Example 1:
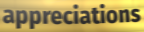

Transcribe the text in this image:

appreciations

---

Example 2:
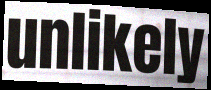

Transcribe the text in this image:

unlikely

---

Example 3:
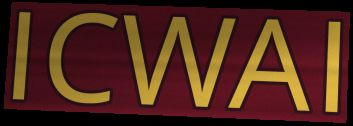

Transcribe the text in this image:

ICWAI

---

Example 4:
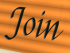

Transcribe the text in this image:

Join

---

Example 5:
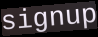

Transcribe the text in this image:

signup